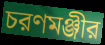
চরণমঞ্জীর